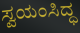
ಸ್ವಯಂಸಿದ್ಧ